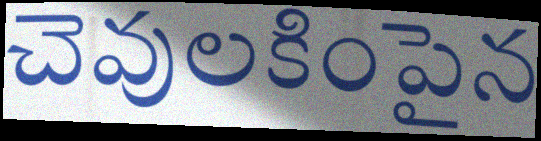
చెవులకింపైన